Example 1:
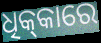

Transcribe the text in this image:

ଧିକ୍‌କାରେ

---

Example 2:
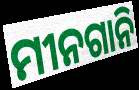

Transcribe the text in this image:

ମୀନଗାନି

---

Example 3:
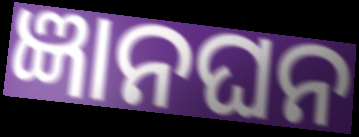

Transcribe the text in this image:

ଜ୍ଞାନଘନ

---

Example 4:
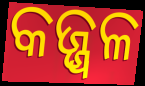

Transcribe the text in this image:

କଜ୍ଜ୍ୱଳ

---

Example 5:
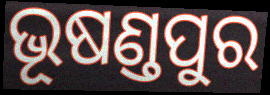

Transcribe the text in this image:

ଭୂଷଣ୍ଡପୁର